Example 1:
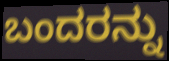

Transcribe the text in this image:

ಬಂದರನ್ನು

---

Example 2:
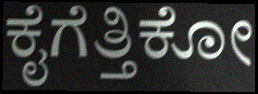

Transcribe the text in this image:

ಕೈಗೆತ್ತಿಕೋ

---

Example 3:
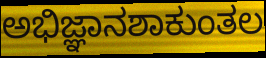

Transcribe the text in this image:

ಅಭಿಜ್ಞಾನಶಾಕುಂತಲ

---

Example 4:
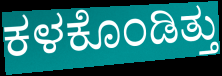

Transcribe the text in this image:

ಕಳಕೊಂಡಿತ್ತು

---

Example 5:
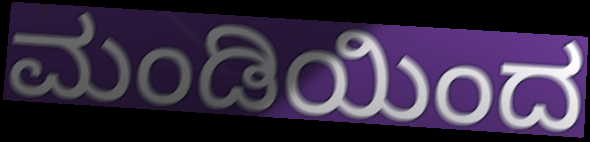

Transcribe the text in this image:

ಮಂಡಿಯಿಂದ